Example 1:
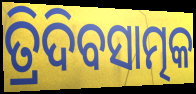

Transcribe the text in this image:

ତ୍ରିଦିବସାତ୍ମକ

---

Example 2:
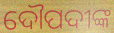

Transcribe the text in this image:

ଦୌପଦୀଙ୍କ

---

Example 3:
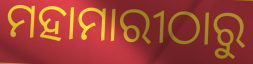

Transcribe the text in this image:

ମହାମାରୀଠାରୁ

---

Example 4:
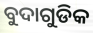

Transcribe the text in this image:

ବୁଦାଗୁଡିକ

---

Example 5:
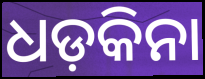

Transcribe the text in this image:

ଧଡ଼କିନା